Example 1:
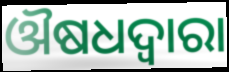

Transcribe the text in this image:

ଔଷଧଦ୍ବାରା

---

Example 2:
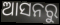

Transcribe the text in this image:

ଆସନରୁ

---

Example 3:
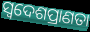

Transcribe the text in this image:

ସ୍ଵଦେଶପ୍ରାଣତା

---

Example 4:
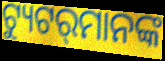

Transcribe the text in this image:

ଟ୍ୟୁଟର୍‍ମାନଙ୍କ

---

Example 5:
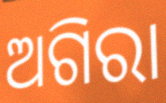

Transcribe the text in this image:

ଅଗିରା